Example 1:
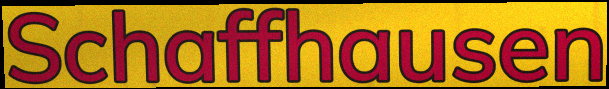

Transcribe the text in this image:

Schaffhausen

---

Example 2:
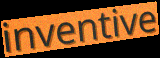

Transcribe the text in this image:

inventive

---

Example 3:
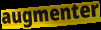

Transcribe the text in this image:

augmenter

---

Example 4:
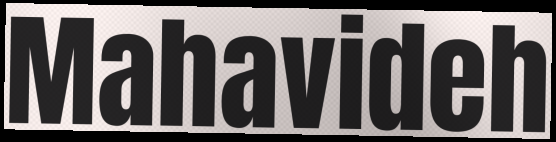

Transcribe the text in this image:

Mahavideh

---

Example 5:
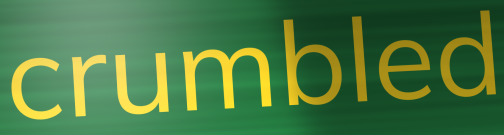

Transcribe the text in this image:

crumbled